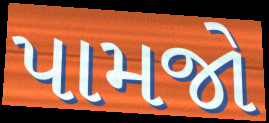
પામજો